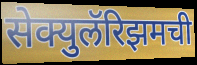
सेक्युलॅरिझमची